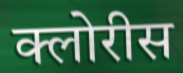
क्लोरीस